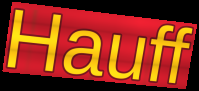
Hauff